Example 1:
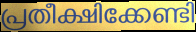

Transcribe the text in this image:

പ്രതീക്ഷിക്കേണ്ടി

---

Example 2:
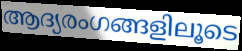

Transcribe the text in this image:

ആദ്യരംഗങ്ങളിലൂടെ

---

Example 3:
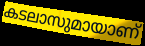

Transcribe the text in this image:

കടലാസുമായാണ്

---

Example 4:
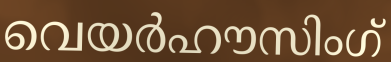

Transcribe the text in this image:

വെയർഹൗസിംഗ്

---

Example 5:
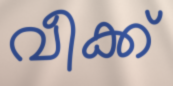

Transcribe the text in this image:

വീക്ക്